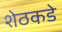
शेठकडे